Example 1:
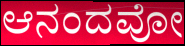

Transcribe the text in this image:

ಆನಂದವೋ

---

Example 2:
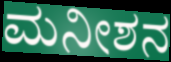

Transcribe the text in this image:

ಮನೀಶನ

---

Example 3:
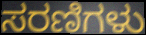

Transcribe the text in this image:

ಸರಣಿಗಳು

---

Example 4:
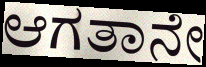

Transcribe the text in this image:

ಆಗತಾನೇ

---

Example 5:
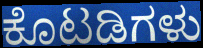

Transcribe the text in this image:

ಕೊಟಡಿಗಳು